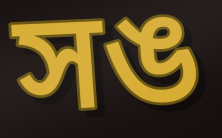
সঙ